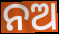
ନଅ